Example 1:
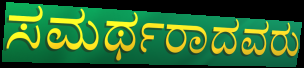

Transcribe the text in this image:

ಸಮರ್ಥರಾದವರು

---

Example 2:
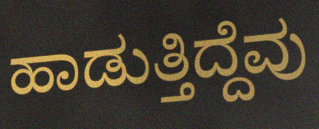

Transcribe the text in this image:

ಹಾಡುತ್ತಿದ್ದೆವು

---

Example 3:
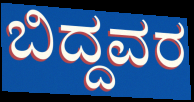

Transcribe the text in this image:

ಬಿದ್ದವರ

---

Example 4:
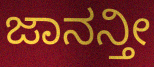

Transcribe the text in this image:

ಜಾನನ್ತೀ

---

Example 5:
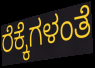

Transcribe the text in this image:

ರೆಕ್ಕೆಗಳಂತೆ